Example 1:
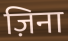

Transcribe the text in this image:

ज़िना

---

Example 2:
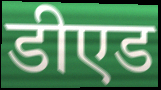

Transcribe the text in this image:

डीएड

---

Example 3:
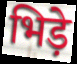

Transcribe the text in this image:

भिड़े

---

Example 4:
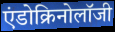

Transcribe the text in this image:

एंडोक्रिनोलॉजी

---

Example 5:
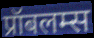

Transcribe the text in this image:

प्रॉबलम्स